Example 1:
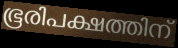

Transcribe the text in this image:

ഭൂരിപക്ഷത്തിന്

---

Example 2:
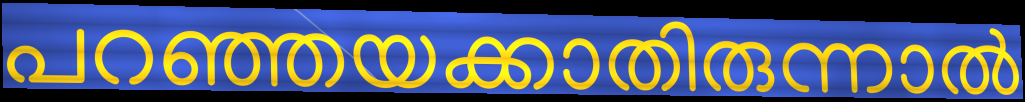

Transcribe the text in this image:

പറഞ്ഞയക്കാതിരുന്നാൽ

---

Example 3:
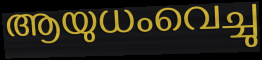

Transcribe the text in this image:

ആയുധംവെച്ചു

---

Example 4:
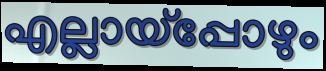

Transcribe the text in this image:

എല്ലായ്പ്പോഴും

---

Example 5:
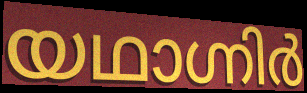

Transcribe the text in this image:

യഥാഗ്നിർ